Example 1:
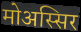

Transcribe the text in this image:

मोअस्सिर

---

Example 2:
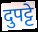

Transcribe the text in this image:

दुपट्टे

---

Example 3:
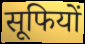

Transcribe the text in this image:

सूफियों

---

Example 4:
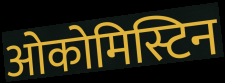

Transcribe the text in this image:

ओकोमिस्टिन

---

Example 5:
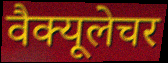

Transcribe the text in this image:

वैक्यूलेचर